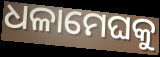
ଧଳାମେଘକୁ